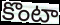
కొంటా